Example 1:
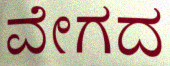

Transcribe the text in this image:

ವೇಗದ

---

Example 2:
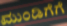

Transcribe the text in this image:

ಮುಂಡಿಗೆಗೆ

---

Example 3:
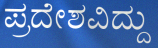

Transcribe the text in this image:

ಪ್ರದೇಶವಿದ್ದು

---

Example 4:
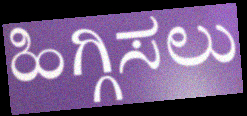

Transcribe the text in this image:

ಹಿಗ್ಗಿಸಲು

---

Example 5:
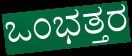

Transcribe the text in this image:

ಒಂಭತ್ತರ